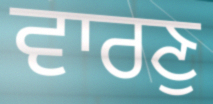
ਵਾਰਣੁ